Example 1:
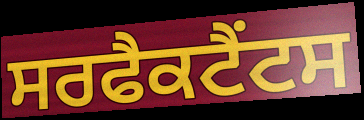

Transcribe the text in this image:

ਸਰਫੈਕਟੈਂਟਸ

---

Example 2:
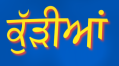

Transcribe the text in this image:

ਕੁੱੜੀਆਂ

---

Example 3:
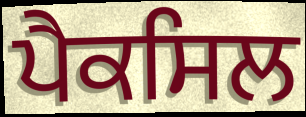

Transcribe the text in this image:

ਪੈਕਸਿਲ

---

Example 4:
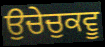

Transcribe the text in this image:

ਉਚੇਚੁਕਵੂ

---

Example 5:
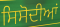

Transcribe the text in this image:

ਸਿਸੋਦੀਆਂ